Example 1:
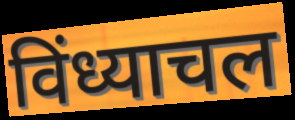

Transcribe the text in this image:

विंध्याचल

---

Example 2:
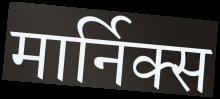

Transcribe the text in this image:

मार्निक्स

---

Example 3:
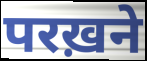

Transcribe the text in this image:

परख़ने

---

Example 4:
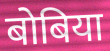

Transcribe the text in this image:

बोबिया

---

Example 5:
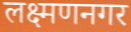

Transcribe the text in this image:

लक्ष्मणनगर